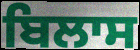
ਬਿਲਾਸ